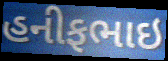
હનીફભાઇ